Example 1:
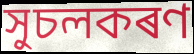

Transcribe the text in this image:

সুচলকৰণ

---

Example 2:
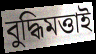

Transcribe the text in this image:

বুদ্ধিমত্তাই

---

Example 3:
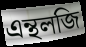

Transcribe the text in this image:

এন্থলজি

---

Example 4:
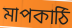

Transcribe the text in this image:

মাপকাঠি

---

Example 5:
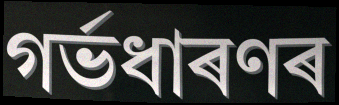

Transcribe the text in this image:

গৰ্ভধাৰণৰ